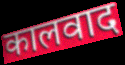
कालवाद